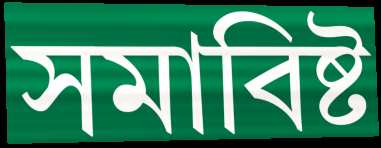
সমাবিষ্ট